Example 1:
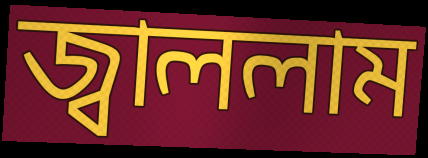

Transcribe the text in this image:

জ্বাললাম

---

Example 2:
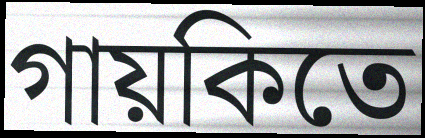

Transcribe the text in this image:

গায়কিতে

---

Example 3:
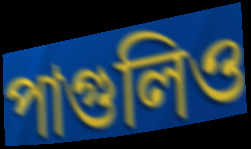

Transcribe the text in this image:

পাগুলিও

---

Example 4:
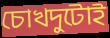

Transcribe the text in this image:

চোখদুটোই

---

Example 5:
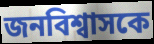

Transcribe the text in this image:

জনবিশ্বাসকে